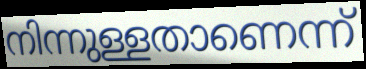
നിന്നുള്ളതാണെന്ന്